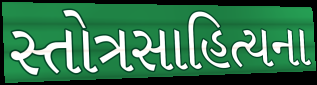
સ્તોત્રસાહિત્યના